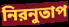
নিরনুতাপ